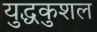
युद्धकुशल